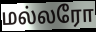
மல்லரோ